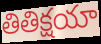
తితిక్షయా